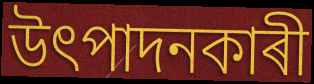
উৎপাদনকাৰী